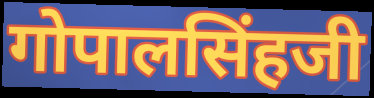
गोपालसिंहजी